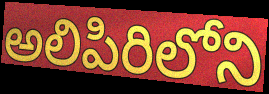
అలిపిరిలోని